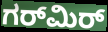
ಗರ್‌ಮಿರ್